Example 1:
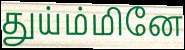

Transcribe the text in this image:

துய்ம்மினே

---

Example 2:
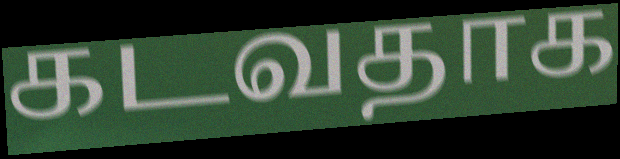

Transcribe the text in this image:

கடவதாக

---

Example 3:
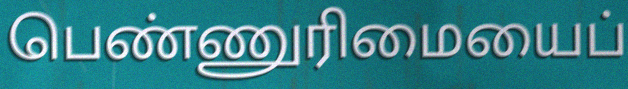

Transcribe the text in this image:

பெண்ணுரிமையைப்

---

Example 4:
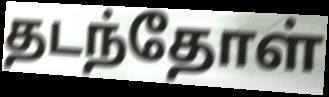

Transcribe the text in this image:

தடந்தோள்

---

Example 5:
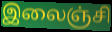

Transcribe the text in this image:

இலைஞ்சி